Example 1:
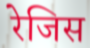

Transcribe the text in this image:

रेजिस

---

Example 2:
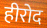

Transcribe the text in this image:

हीरोद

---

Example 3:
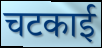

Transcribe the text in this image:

चटकाई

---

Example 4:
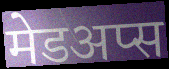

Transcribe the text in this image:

मेडअप्स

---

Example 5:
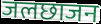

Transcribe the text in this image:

जलछाजन